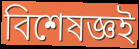
বিশেষজ্ঞই